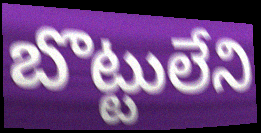
బొట్టులేని